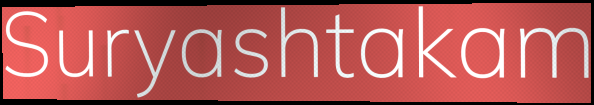
Suryashtakam